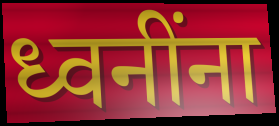
ध्वनींना